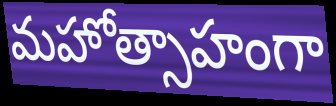
మహోత్సాహంగా